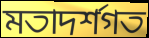
মতাদৰ্শগত